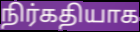
நிர்கதியாக